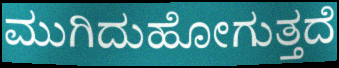
ಮುಗಿದುಹೋಗುತ್ತದೆ